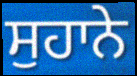
ਸੁਹਾਨੇ